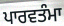
ਪਾਰਵਤੰਮਾ